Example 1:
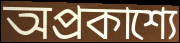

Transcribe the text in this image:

অপ্রকাশ্যে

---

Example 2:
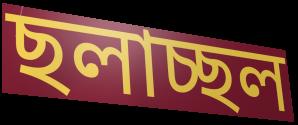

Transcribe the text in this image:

ছলাচ্ছল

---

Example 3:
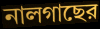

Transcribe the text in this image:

নালগাছের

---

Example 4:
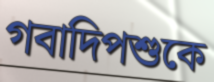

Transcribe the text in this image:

গবাদিপশুকে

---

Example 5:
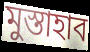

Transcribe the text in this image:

মুস্তাহাব